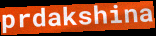
prdakshina